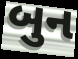
બુન